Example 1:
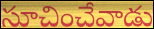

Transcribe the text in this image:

సూచించేవాడు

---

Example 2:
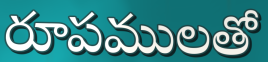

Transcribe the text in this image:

రూపములతో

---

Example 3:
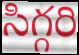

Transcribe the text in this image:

సిగ్గరి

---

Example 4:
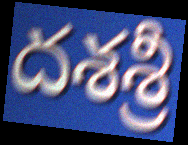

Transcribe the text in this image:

దశశ్రీ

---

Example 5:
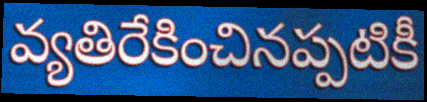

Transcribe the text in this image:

వ్యతిరేకించినప్పటికీ